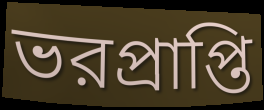
ভরপ্রাপ্তি